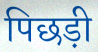
पिछड़ी